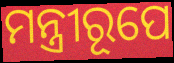
ମନ୍ତ୍ରୀରୂପେ